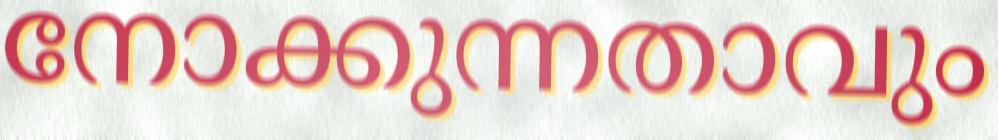
നോക്കുന്നതാവും